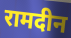
रामदीन